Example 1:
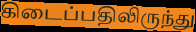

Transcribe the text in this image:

கிடைப்பதிலிருந்து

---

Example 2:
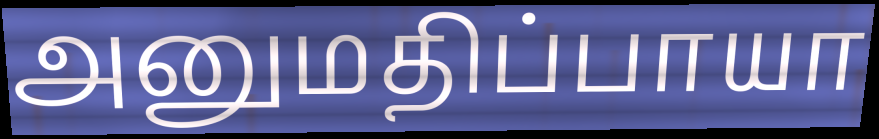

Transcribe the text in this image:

அனுமதிப்பாயா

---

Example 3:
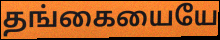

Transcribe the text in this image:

தங்கையையே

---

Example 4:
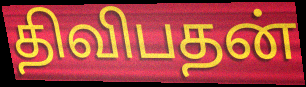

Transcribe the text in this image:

திவிபதன்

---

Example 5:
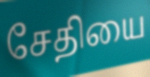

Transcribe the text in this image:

சேதியை